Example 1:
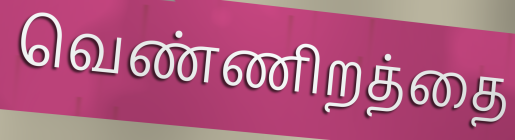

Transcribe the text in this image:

வெண்ணிறத்தை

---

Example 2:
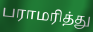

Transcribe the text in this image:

பராமரித்து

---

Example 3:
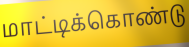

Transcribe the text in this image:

மாட்டிக்கொண்டு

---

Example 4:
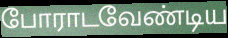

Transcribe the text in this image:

போராடவேண்டிய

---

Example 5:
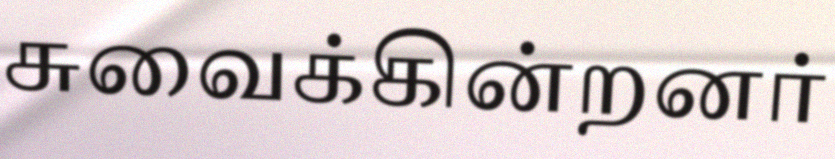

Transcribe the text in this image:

சுவைக்கின்றனர்